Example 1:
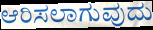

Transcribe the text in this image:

ಆರಿಸಲಾಗುವುದು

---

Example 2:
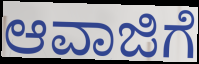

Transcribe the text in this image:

ಆವಾಜಿಗೆ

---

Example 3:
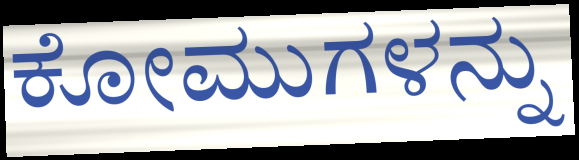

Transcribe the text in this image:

ಕೋಮುಗಳನ್ನು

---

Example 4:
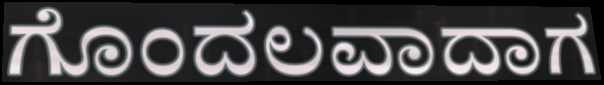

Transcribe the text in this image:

ಗೊಂದಲವಾದಾಗ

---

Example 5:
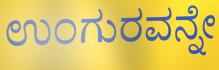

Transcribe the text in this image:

ಉಂಗುರವನ್ನೇ